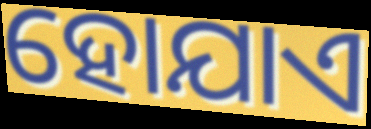
ହୋଯାଏ